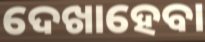
ଦେଖାହେବା